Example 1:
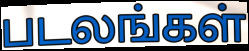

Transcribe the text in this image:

படலங்கள்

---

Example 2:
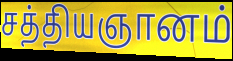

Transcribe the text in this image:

சத்தியஞானம்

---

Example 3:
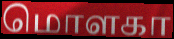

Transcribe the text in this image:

மொளகா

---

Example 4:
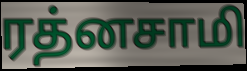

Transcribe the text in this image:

ரத்னசாமி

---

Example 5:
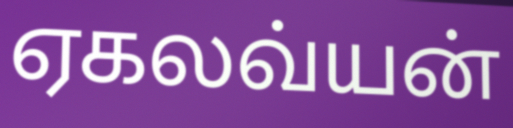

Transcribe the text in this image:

ஏகலவ்யன்